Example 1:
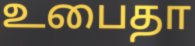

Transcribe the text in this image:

உபைதா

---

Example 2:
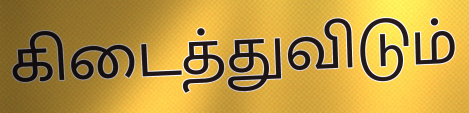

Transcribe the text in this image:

கிடைத்துவிடும்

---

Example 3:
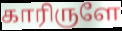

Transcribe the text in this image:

காரிருளே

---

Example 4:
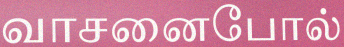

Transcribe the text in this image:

வாசனைபோல்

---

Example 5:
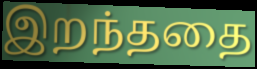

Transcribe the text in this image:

இறந்ததை